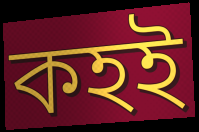
কহই